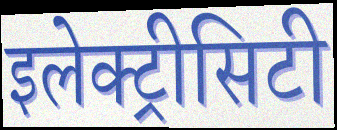
इलेक्ट्रीसिटी